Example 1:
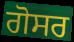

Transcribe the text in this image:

ਗੋਸਰ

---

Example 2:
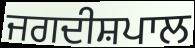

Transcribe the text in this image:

ਜਗਦੀਸ਼ਪਾਲ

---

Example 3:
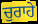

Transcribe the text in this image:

ਚੁਰਾਹੇ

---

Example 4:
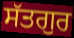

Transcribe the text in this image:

ਸੱਤਗੁਰ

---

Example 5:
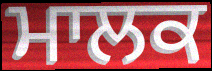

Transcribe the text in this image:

ਮਾਲਕ